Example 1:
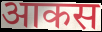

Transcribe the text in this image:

आकस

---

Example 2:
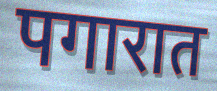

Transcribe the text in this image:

पगारात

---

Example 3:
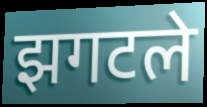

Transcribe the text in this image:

झगटले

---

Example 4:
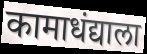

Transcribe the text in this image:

कामाधंद्याला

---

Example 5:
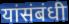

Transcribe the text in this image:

यांसंबंधी